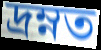
দ্রম্নত